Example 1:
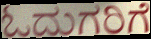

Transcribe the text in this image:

ಓದುಗರಿಗೆ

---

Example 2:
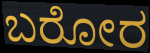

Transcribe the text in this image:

ಬರೋರ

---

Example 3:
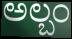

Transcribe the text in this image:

ಅಲ್ಬಂ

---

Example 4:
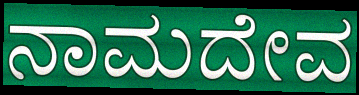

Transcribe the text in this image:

ನಾಮದೇವ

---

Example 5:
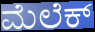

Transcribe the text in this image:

ಮೆಲೆಕ್